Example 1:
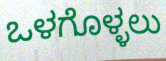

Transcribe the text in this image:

ಒಳಗೊಳ್ಳಲು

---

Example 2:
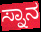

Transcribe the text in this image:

ಸ್ನಾನ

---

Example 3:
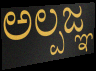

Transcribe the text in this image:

ಅಲ್ಪಜ್ಞ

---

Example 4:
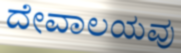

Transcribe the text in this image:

ದೇವಾಲಯವು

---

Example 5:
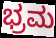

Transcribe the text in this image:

ಭ್ರಮ